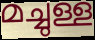
മച്ചുള്ള